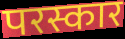
परस्कार